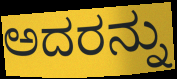
ಅದರನ್ನು